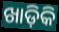
ଖାଡ଼ିକି